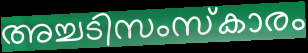
അച്ചടിസംസ്കാരം